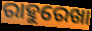
ରାହୁରେଖା